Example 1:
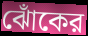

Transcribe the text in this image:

ঝোঁকের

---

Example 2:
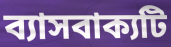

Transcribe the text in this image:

ব্যাসবাক্যটি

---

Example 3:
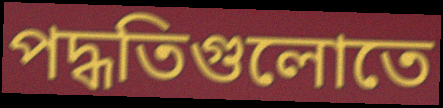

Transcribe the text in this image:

পদ্ধতিগুলোতে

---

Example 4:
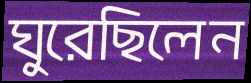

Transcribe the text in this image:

ঘুরেছিলেন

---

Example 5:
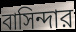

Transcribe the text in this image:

বাসিন্দার